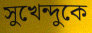
সুখেন্দুকে